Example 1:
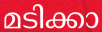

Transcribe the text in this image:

മടിക്കാ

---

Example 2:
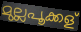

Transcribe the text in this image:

മുല്ലപൂക്കള്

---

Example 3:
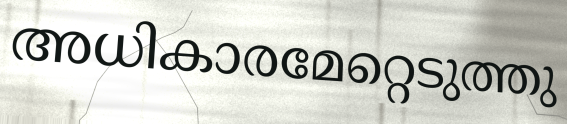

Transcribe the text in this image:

അധികാരമേറ്റെടുത്തു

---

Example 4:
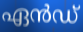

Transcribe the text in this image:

ഏൻഡ്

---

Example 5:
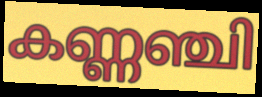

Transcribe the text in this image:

കണ്ണഞ്ചി